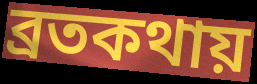
ব্রতকথায়